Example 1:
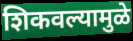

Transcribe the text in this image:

शिकवल्यामुळे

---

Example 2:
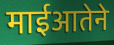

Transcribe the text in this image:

माईआतेने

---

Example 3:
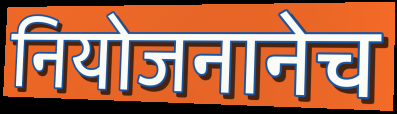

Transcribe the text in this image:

नियोजनानेच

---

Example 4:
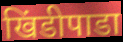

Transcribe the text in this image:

खिंडीपाडा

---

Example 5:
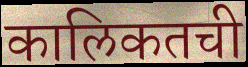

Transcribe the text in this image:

कालिकतची